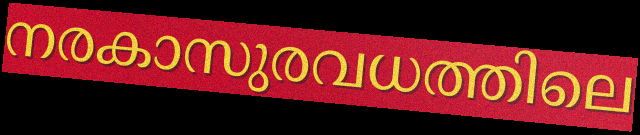
നരകാസുരവധത്തിലെ